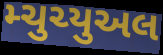
મ્ચુચ્યુઅલ